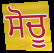
ਸੋਚੂ